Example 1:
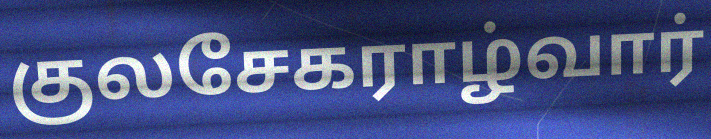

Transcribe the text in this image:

குலசேகராழ்வார்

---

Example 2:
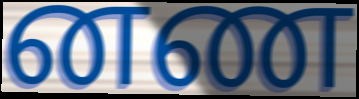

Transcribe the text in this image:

னண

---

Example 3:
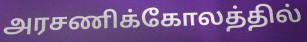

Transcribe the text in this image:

அரசணிக்கோலத்தில்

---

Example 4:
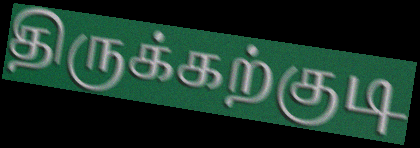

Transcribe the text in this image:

திருக்கற்குடி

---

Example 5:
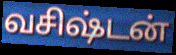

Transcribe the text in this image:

வசிஷ்டன்